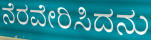
ನೆರವೇರಿಸಿದನು